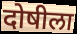
दोषीला